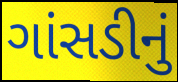
ગાંસડીનું